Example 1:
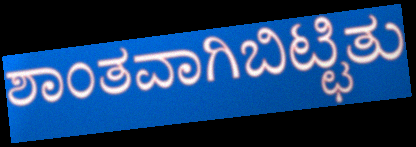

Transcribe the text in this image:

ಶಾಂತವಾಗಿಬಿಟ್ಟಿತು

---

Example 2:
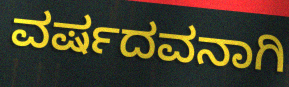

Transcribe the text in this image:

ವರ್ಷದವನಾಗಿ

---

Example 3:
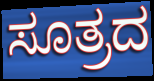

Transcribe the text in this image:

ಸೂತ್ರದ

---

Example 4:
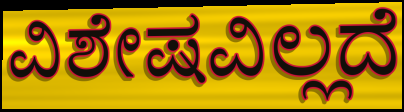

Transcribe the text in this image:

ವಿಶೇಷವಿಲ್ಲದೆ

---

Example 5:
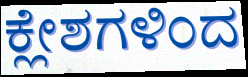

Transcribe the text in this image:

ಕ್ಲೇಶಗಳಿಂದ